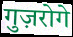
गुज़रोगे